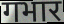
गभार